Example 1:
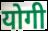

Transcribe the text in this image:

योगी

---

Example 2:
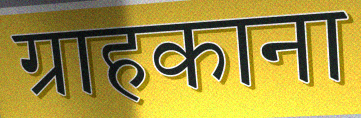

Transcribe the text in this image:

ग्राहकाना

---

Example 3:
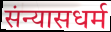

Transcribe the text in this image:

संन्यासधर्म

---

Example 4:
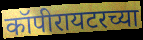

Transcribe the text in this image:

कॉपीरायटरच्या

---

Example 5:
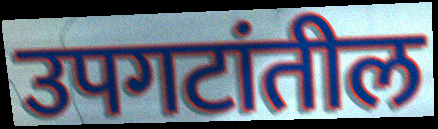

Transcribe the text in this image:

उपगटांतील